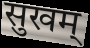
सुखम्